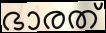
ഭാരത്